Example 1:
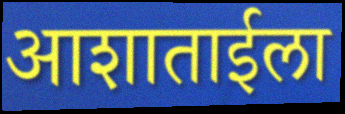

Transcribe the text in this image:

आशाताईला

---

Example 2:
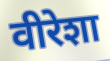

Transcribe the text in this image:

वीरेशा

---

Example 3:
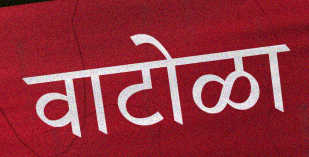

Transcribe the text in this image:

वाटोळा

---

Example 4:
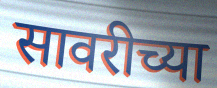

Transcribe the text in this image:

सावरीच्या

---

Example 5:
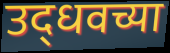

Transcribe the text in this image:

उद्धवच्या